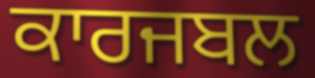
ਕਾਰਜਬਲ